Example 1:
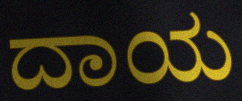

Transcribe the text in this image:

ದಾಯ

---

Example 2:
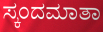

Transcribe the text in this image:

ಸ್ಕಂದಮಾತಾ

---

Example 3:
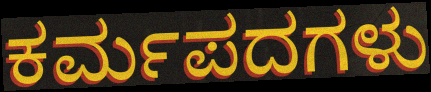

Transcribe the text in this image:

ಕರ್ಮಪದಗಳು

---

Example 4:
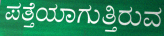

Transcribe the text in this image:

ಪತ್ತೆಯಾಗುತ್ತಿರುವ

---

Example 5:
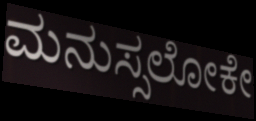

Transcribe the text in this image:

ಮನುಸ್ಸಲೋಕೇ